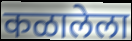
कळालेला